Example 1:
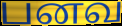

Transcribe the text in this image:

பனவ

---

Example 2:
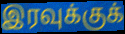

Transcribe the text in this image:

இரவுக்குக்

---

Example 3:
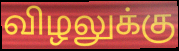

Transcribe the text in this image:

விழலுக்கு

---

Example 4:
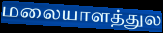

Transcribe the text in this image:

மலையாளத்துல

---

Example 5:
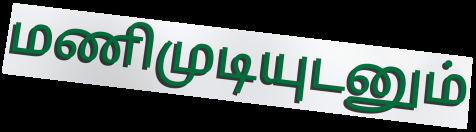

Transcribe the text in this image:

மணிமுடியுடனும்